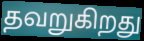
தவறுகிறது